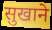
सुखाने